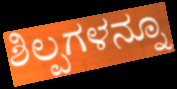
ಶಿಲ್ಪಗಳನ್ನೂ